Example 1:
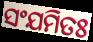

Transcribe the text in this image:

ସଂଯମିତଃ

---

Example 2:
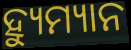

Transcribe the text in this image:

ହ୍ୟୁମ୍ୟାନ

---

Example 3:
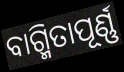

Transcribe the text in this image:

ବାଗ୍ମିତାପୂର୍ଣ୍ଣ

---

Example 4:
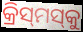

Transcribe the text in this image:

କ୍ରିସ୍‌ମସ୍‌କୁ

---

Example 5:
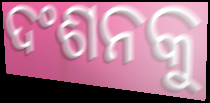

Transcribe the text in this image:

ଦଂଶନକୁ